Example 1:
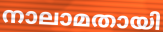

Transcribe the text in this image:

നാലാമതായി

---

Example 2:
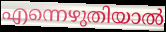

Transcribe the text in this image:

എന്നെഴുതിയാൽ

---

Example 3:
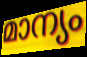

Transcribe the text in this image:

മാന്യം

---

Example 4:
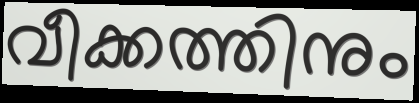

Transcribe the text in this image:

വീക്കത്തിനും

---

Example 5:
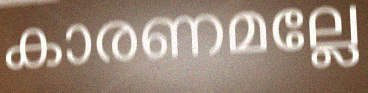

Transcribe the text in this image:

കാരണമല്ലേ